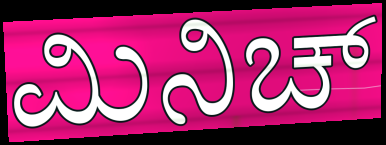
ಮಿನಿಚ್